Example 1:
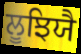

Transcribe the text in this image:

ਲੂਝਿਯੈ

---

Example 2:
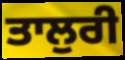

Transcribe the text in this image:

ਤਾਲੁਰੀ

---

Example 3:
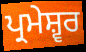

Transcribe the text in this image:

ਪ੍ਰਮੇਸ਼੍ਵਰ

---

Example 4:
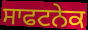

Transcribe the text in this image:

ਸਾਫਟਨੇਕ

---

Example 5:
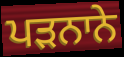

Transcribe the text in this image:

ਪੜਨਾਨੇ